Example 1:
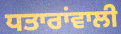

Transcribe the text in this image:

ਧਤਾਰਾਂਵਾਲੀ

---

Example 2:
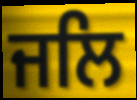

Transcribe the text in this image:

ਜਲਿ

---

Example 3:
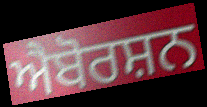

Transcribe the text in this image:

ਐਬੋਰਸ਼ਨ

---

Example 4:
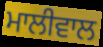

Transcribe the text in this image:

ਮਾਲੀਵਾਲ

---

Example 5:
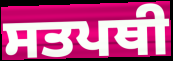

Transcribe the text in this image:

ਸਤਪਥੀ